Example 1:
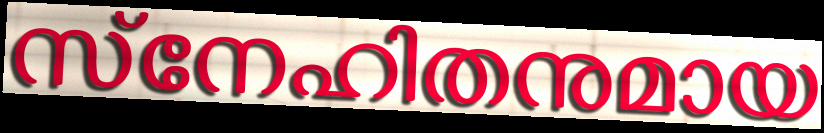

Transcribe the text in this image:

സ്‌നേഹിതനുമായ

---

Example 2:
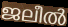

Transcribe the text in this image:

ജലീൽ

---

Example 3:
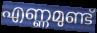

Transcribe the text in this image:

എണ്ണമുണ്ട്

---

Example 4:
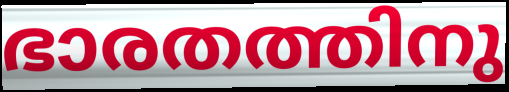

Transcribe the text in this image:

ഭാരതത്തിനു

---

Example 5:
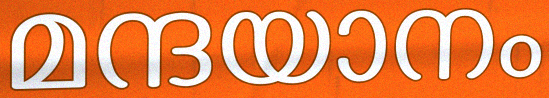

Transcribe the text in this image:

മന്ദയാനം